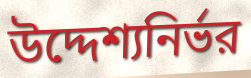
উদ্দেশ্যনির্ভর